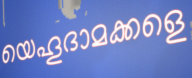
യെഹൂദാമക്കളെ